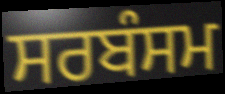
ਸਰਬੰਸਮ